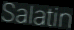
Salatin